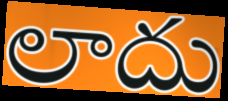
లాదు